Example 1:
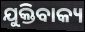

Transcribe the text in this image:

ଯୁକ୍ତିବାକ୍ୟ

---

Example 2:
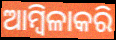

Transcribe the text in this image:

ଆମ୍ବିଳାକରି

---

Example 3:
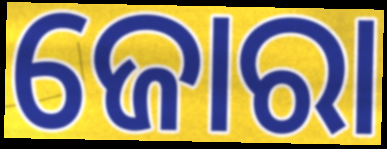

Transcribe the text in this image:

ଜୋରା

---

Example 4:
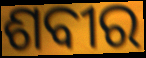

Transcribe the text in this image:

ଶବୀର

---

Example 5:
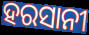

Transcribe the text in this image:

ହରସାନୀ